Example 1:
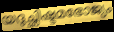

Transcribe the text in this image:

യദുച്ഛിഷ്ടമഭോജ്യം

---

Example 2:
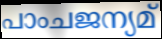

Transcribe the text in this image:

പാംചജന്യമ്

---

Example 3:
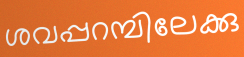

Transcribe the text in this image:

ശവപ്പറമ്പിലേക്കു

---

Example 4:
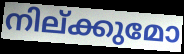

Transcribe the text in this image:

നില്ക്കുമോ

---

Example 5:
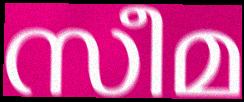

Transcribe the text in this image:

സീമ